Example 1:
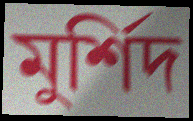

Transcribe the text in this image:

মুর্শিদ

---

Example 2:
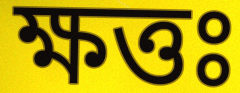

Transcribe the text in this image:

ক্ষত্তঃ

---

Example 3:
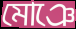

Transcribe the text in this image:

মোঞে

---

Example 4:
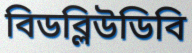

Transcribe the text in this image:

বিডব্লিউডিবি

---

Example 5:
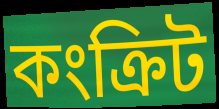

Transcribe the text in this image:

কংক্রিট